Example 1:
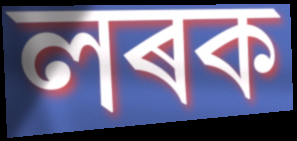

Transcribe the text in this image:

লৰক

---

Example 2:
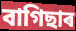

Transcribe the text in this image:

বাগিছাৰ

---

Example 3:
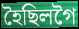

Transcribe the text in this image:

হৈছিলগৈ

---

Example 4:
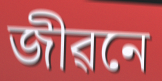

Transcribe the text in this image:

জীৱনে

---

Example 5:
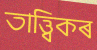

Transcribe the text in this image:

তাত্ত্বিকৰ